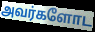
அவர்களோட